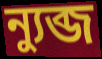
ন্যুব্জ